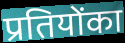
प्रतियोंका